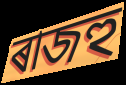
ৰাজহু